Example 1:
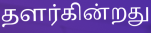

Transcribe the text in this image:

தளர்கின்றது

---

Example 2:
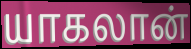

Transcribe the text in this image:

யாகலான்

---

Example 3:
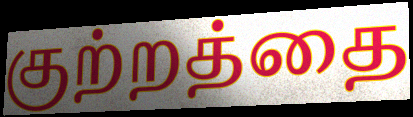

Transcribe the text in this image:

குற்றத்தை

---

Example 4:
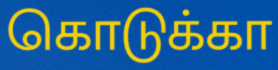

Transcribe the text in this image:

கொடுக்கா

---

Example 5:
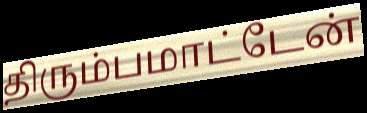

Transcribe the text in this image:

திரும்பமாட்டேன்